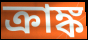
ক্রাঙ্ক